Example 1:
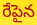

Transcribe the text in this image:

రేపైన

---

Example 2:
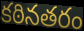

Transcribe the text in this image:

కఠినతరం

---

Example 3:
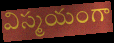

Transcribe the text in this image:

విస్మయంగా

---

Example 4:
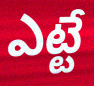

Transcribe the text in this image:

ఎట్టే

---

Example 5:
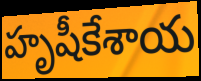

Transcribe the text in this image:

హృషీకేశాయ